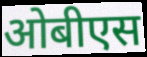
ओबीएस